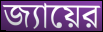
জ্যায়ের